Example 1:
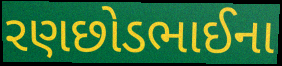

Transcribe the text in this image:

રણછોડભાઈના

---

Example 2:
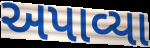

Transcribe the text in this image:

અપાવ્યા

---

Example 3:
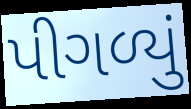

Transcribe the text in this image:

પીગળ્યું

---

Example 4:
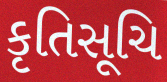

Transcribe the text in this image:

કૃતિસૂચિ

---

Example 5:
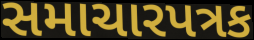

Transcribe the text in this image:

સમાચારપત્રક